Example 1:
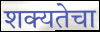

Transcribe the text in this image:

शक्‍यतेचा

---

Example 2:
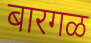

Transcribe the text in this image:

बारगळ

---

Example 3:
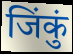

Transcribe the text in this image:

जिंकुं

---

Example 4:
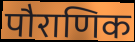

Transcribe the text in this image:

पौराणिक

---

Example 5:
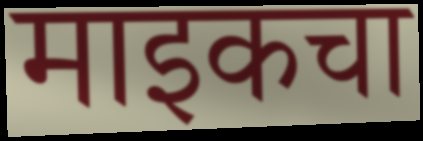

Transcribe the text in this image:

माइकचा